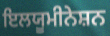
ਇਲਯੂਮੀਨੇਸ਼ਨ